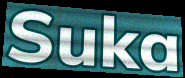
Suka